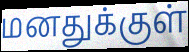
மனதுக்குள்